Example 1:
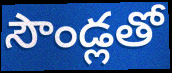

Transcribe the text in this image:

సౌండ్లతో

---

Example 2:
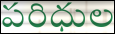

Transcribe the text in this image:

పరిధుల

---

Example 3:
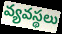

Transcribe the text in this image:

వ్యవస్థలు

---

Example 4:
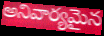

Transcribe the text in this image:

అనివార్యమైన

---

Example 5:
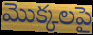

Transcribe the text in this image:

మొక్కలపై